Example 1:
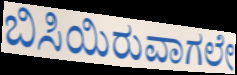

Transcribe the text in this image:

ಬಿಸಿಯಿರುವಾಗಲೇ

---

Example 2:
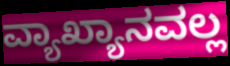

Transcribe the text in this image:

ವ್ಯಾಖ್ಯಾನವಲ್ಲ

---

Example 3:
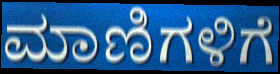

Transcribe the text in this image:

ಮಾಣಿಗಳಿಗೆ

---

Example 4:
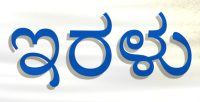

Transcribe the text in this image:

ಇರಳು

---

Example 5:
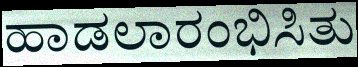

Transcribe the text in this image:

ಹಾಡಲಾರಂಭಿಸಿತು